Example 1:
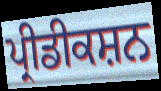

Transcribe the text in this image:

ਪ੍ਰੀਡੀਕਸ਼ਨ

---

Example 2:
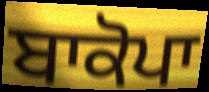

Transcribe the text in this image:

ਬਾਕੋਪਾ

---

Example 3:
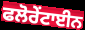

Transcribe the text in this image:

ਫਲੋਰੇਂਟਾਈਨ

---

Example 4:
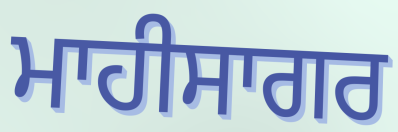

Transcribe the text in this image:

ਮਾਹੀਸਾਗਰ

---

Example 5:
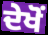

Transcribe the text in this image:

ਦੇਖੋਂ